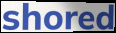
shored